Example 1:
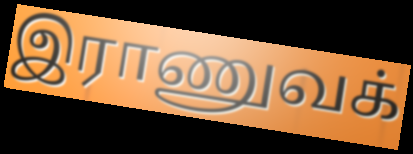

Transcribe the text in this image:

இராணுவக்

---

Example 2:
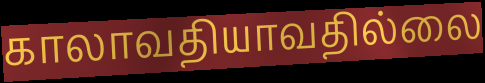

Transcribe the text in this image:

காலாவதியாவதில்லை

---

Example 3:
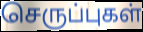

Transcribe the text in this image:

செருப்புகள்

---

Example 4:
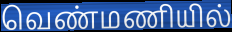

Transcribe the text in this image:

வெண்மணியில்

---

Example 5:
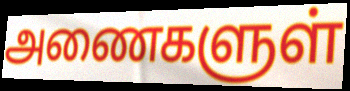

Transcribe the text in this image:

அணைகளுள்